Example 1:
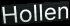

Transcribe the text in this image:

Hollen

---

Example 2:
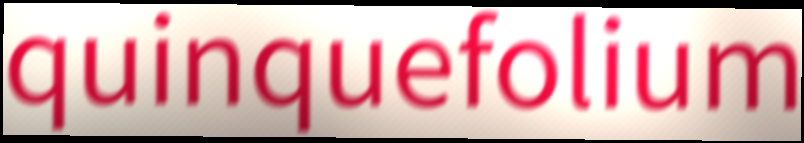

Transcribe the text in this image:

quinquefolium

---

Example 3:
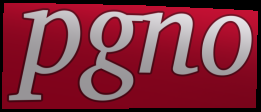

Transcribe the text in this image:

pgno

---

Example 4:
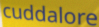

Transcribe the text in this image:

cuddalore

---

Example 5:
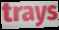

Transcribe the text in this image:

trays